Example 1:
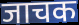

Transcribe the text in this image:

जाचक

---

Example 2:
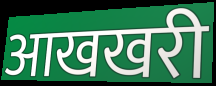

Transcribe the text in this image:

आखखरी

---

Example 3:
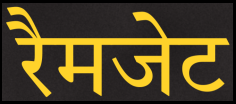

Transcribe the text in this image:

रैमजेट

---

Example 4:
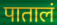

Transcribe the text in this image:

पातालं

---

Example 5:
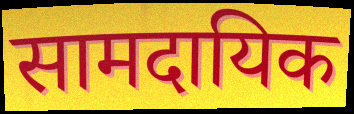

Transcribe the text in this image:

सामदायिक